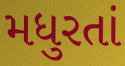
મધુરતાં